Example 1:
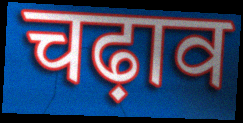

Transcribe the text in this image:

चढ़ाव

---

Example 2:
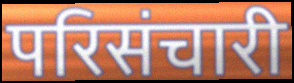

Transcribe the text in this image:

परिसंचारी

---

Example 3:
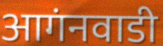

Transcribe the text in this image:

आगंनवाडी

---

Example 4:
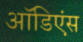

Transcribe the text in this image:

ऑडिएंस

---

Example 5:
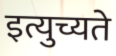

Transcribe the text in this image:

इत्युच्यते